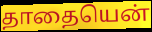
தாதையென்